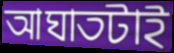
আঘাতটাই